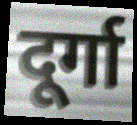
दूर्गा